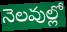
నెలవుల్లో